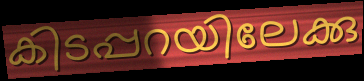
കിടപ്പറയിലേക്കു